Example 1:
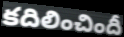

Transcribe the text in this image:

కదిలించిందీ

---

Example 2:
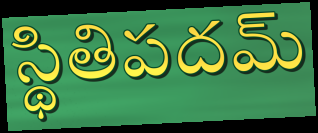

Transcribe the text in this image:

స్థితిపదమ్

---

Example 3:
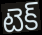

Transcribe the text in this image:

టెక్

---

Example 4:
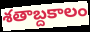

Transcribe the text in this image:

శతాబ్దకాలం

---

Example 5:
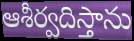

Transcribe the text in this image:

ఆశీర్వదిస్తాను